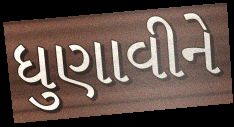
ધુણાવીને